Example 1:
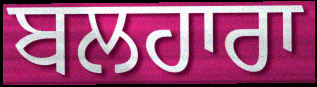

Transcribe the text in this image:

ਬਲਹਾਰਾ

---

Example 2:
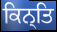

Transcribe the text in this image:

ਕਿਨ੍ਤਿ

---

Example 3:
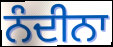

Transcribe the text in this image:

ਨੰਦੀਨਾ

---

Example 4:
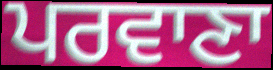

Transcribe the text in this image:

ਪਰਵਾਣਾ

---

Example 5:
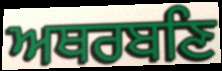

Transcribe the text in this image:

ਅਥਰਬਣਿ